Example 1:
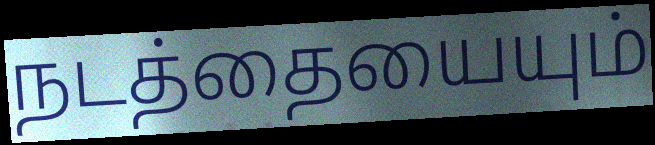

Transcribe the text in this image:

நடத்தையையும்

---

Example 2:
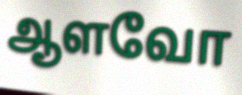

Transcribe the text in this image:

ஆளவோ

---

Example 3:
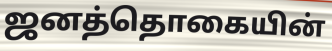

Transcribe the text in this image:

ஜனத்தொகையின்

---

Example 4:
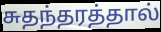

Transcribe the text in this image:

சுதந்தரத்தால்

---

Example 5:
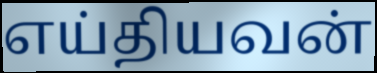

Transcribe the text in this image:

எய்தியவன்